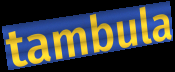
tambula